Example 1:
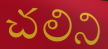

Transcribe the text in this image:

చలిని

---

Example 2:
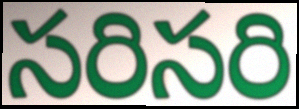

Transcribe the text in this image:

సరిసరి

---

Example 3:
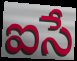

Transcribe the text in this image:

ఐసే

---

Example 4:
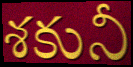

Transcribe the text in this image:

శకునీ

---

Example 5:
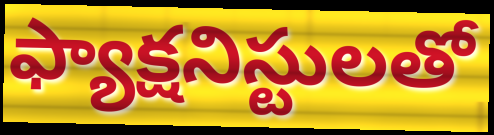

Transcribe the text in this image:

ఫ్యాక్షనిస్టులతో